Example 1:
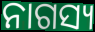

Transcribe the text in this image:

ନାଗସ୍ୟ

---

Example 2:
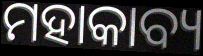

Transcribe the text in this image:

ମହାକାବ୍ୟ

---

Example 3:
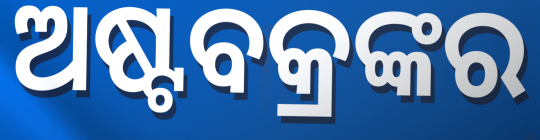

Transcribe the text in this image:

ଅଷ୍ଟବକ୍ରଙ୍କର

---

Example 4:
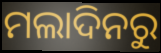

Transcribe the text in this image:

ମଲାଦିନରୁ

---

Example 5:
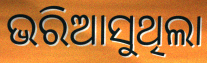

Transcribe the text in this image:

ଭରିଆସୁଥିଲା